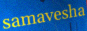
samavesha